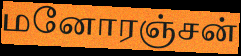
மனோரஞ்சன்